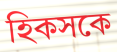
হিকসকে